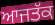
ਆਜਤੱਕ